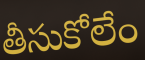
తీసుకోలేం